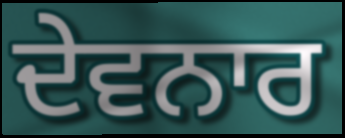
ਦੇਵਨਾਰ